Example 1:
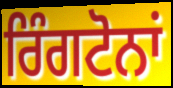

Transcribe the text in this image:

ਰਿੰਗਟੋਨਾਂ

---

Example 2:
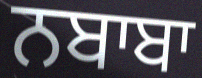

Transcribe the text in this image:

ਨਬਾਬਾ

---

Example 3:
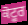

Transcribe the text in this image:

ਕੋਟੂਰ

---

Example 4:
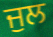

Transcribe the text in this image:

ਜੁਲ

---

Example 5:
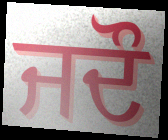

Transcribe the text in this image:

ਜਦੌ